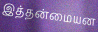
இத்தன்மையன